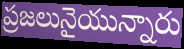
ప్రజలునైయున్నారు